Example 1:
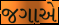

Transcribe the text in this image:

જગાએ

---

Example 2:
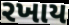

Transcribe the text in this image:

રખાય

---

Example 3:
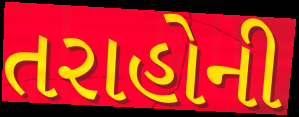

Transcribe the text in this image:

તરાહોની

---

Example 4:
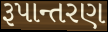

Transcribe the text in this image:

રૂપાન્તરણ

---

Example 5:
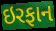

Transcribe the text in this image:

ઇરફાન